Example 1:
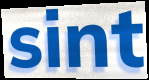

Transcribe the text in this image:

sint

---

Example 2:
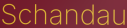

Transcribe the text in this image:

Schandau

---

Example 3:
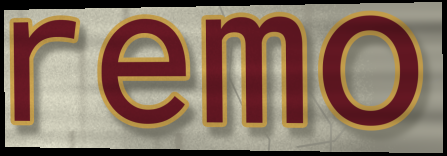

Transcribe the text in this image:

remo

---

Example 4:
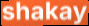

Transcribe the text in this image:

shakay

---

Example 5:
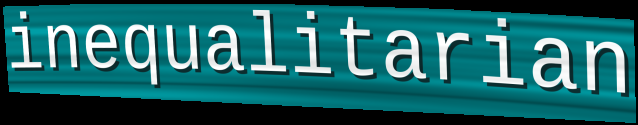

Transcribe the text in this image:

inequalitarian